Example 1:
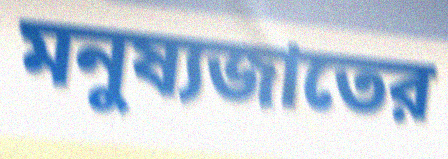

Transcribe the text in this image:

মনুষ্যজাতের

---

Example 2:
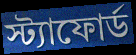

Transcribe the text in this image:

স্ট্যাফোর্ড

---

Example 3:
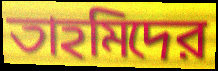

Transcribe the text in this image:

তাহমিদের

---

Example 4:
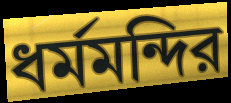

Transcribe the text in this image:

ধর্মমন্দির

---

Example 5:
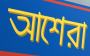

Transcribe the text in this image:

আশেরা